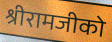
श्रीरामजीको